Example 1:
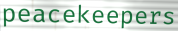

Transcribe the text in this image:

peacekeepers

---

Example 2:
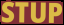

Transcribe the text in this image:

STUP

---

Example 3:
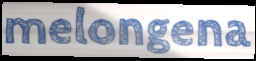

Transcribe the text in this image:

melongena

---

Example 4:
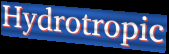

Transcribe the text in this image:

Hydrotropic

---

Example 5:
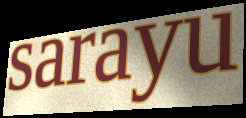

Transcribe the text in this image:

sarayu